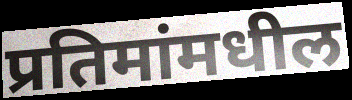
प्रतिमांमधील